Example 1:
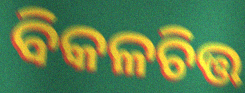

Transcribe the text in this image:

ବିକଳଚିତ୍ତ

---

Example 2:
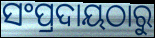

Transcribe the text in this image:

ସଂପ୍ରଦାୟଠାରୁ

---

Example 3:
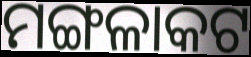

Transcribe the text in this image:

ମଙ୍ଗଳାକଟ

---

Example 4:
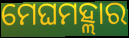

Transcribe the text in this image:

ମେଘମହ୍ଲାର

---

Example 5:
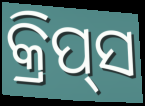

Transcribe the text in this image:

କ୍ରିପ୍‍ସ